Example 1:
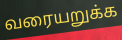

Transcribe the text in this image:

வரையறுக்க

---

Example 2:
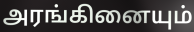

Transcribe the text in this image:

அரங்கினையும்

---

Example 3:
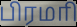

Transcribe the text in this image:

பிரமரி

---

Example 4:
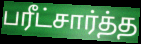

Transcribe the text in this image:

பரீட்சார்த்த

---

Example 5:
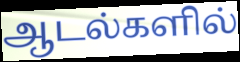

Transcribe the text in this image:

ஆடல்களில்